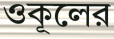
ওকূলের